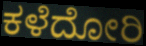
ಕಳೆದೋರಿ